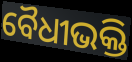
ବୈଧୀଭକ୍ତି